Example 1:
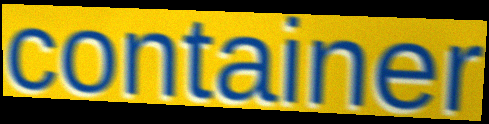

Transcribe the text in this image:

container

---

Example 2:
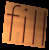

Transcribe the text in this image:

fill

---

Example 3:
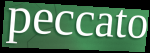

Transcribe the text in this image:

peccato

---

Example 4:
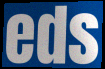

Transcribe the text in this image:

eds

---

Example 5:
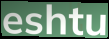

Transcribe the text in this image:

eshtu